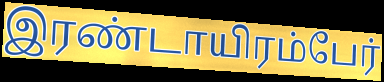
இரண்டாயிரம்பேர்